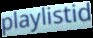
playlistid